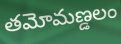
తమోమణ్డలం